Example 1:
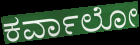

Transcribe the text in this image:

ಕರ್ವಾಲೋ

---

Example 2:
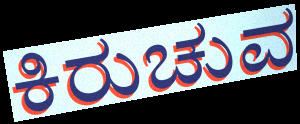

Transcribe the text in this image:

ಕಿರುಚುವ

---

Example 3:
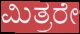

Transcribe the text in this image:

ಮಿತ್ರರೇ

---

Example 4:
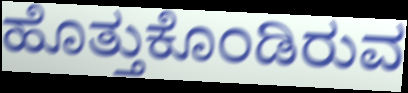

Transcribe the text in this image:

ಹೊತ್ತುಕೊಂಡಿರುವ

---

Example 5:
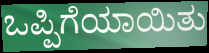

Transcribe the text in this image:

ಒಪ್ಪಿಗೆಯಾಯಿತು